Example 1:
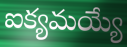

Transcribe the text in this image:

ఐక్యమయ్యే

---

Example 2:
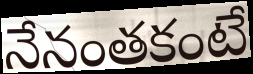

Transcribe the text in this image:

నేనంతకంటే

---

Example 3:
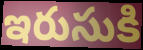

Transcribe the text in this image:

ఇరుసుకి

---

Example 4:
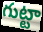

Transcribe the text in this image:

గుట్టా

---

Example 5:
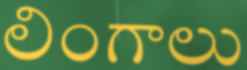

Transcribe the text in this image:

లింగాలు